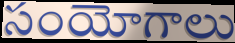
సంయోగాలు